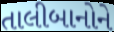
તાલીબાનોને